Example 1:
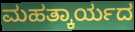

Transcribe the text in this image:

ಮಹತ್ಕಾರ್ಯದ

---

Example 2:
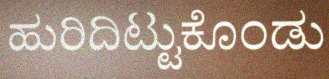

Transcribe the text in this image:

ಹುರಿದಿಟ್ಟುಕೊಂಡು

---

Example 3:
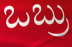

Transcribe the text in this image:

ಒಬ್ರು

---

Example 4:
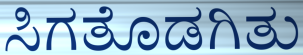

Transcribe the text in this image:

ಸಿಗತೊಡಗಿತು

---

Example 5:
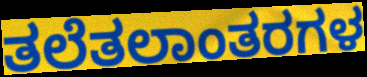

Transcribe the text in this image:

ತಲೆತಲಾಂತರಗಳ